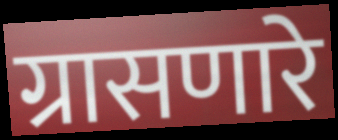
ग्रासणारे